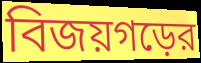
বিজয়গড়ের